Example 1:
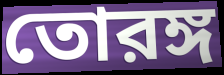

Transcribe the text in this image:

তোরঙ্গ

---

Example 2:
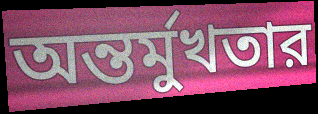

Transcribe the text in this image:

অন্তর্মুখতার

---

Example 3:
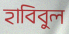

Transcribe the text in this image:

হাবিবুল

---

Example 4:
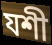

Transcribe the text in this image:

যশী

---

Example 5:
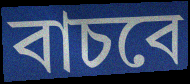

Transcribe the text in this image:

বাচবে